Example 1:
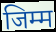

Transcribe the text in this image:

जिम्म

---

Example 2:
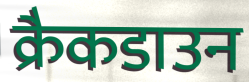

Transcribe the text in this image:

क्रैकडाउन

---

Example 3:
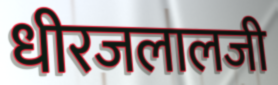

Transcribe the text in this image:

धीरजलालजी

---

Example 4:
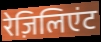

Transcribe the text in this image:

रेज़िलिएंट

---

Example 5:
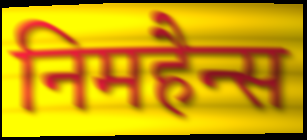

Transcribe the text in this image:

निमहैन्स